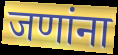
जणांना